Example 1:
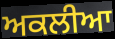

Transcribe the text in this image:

ਅਕਲੀਆ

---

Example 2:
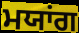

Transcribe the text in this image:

ਮਯਾਂਗ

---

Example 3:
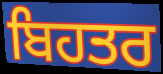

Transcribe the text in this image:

ਬਿਹਤਰ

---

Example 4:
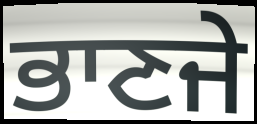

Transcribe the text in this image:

ਭਾਣਜੇ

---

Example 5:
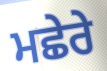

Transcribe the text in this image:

ਮਛੇਰੇ